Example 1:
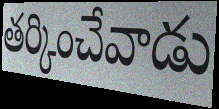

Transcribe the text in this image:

తర్కించేవాడు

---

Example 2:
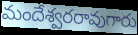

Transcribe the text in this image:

మందేశ్వరరావుగారు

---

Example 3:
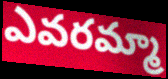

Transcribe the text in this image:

ఎవరమ్మా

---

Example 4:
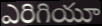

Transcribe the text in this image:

ఎరిగియూ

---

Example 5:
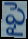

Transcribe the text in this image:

ఫై